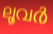
ലൂവർ